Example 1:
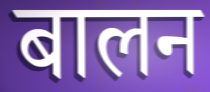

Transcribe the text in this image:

बालन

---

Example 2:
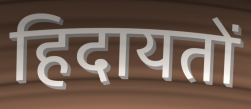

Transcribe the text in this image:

हिदायतों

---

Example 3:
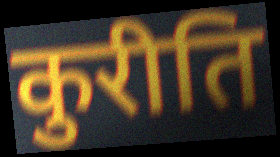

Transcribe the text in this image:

कुरीति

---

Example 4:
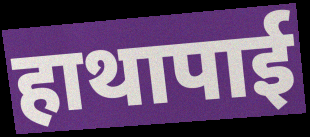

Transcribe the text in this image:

हाथापाई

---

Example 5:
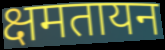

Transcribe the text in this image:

क्षमतायन